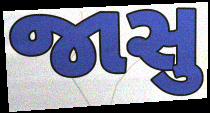
જાસુ